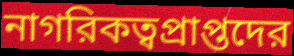
নাগরিকত্বপ্রাপ্তদের